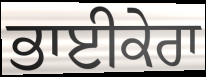
ਭਾਈਕੇਰਾ